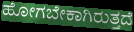
ಹೋಗಬೇಕಾಗಿರುತ್ತದೆ